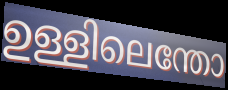
ഉള്ളിലെന്തോ